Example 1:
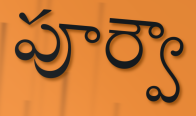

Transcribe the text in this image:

పూర్వౌ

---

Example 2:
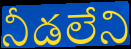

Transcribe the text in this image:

నీడలేని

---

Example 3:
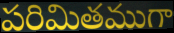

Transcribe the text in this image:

పరిమితముగా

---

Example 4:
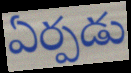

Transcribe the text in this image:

ఏర్పడు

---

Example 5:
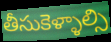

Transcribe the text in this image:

తీసుకెళ్ళాల్సి